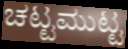
ಚಟ್ಟಮುಟ್ಟ